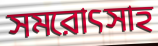
সমরোৎসাহ